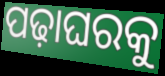
ପଢ଼ାଘରକୁ